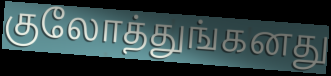
குலோத்துங்கனது